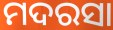
ମଦରସା